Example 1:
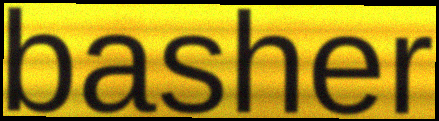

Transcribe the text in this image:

basher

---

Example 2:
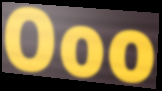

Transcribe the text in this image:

Ooo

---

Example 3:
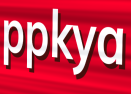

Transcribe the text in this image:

ppkya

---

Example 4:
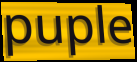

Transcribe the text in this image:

puple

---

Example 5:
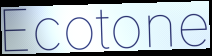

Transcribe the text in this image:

Ecotone